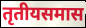
तृतीयसमास